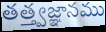
తత్త్వజ్ఞానము